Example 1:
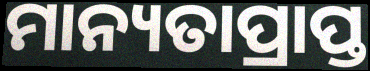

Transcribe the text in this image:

ମାନ୍ୟତାପ୍ରାପ୍ତ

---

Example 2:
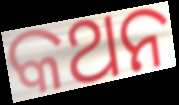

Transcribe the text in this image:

କଥନ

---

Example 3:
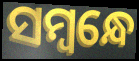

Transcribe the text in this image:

ସମ୍ବନ୍ଧେ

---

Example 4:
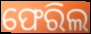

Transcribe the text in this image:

ଫେରିଲ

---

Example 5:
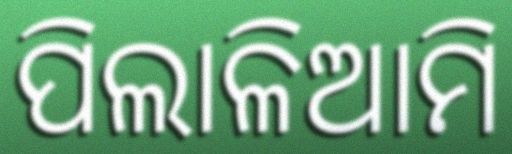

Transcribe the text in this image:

ପିଲାଳିଆମି